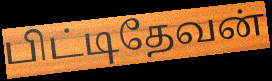
பிட்டிதேவன்